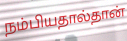
நம்பியதால்தான்